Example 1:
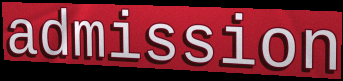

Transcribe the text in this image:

admission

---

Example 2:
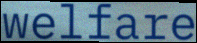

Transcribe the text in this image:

welfare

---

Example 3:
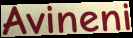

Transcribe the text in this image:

Avineni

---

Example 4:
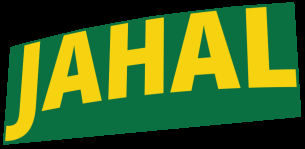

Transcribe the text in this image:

JAHAL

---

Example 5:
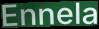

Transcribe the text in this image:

Ennela